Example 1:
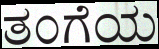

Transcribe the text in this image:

ತಂಗೆಯ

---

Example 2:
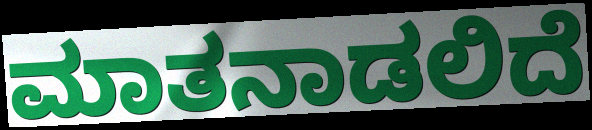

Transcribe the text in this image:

ಮಾತನಾಡಲಿದೆ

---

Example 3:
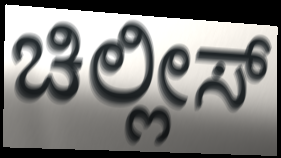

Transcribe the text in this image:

ಚಿಲ್ಲೀಸ್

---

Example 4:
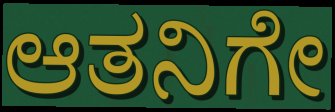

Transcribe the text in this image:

ಆತನಿಗೇ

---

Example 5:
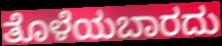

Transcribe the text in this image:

ತೊಳೆಯಬಾರದು